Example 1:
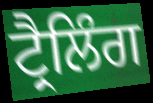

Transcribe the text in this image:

ਟ੍ਰੈਲਿੰਗ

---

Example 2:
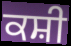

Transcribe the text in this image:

ਕਸ਼ੀ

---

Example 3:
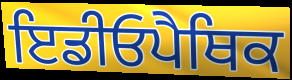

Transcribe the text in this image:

ਇਡੀਓਪੈਥਿਕ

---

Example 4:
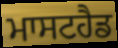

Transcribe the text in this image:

ਮਾਸਟਹੈਡ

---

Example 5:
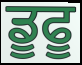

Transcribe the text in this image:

ਡੂਫੂ